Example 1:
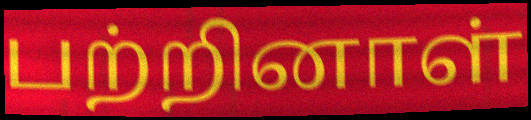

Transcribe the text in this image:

பற்றினாள்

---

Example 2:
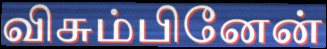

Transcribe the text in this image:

விசும்பினேன்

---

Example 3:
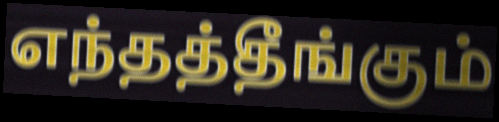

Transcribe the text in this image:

எந்தத்தீங்கும்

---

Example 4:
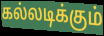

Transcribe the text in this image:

கல்லடிக்கும்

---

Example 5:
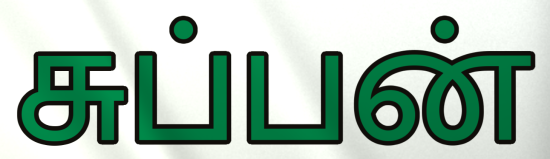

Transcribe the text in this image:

சுப்பன்